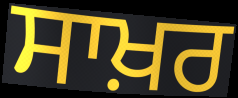
ਸਾਖ਼ਰ